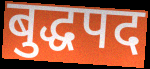
बुद्धपद